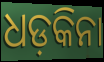
ଧଡ଼କିନା